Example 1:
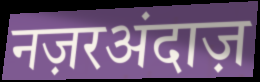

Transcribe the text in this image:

नज़रअंदाज़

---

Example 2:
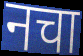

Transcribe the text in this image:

नचा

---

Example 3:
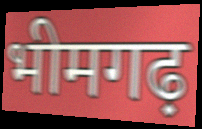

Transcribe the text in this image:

भीमगढ़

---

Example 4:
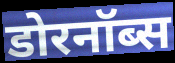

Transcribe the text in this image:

डोरनॉब्स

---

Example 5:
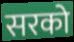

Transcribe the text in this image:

सरको